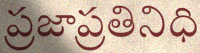
ప్రజాప్రతినిధి